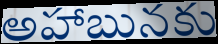
అహాబునకు